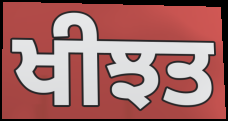
ਖੀਝਤ